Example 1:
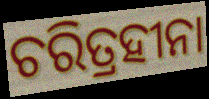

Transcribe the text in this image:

ଚରିତ୍ରହୀନା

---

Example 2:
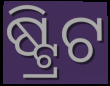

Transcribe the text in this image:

ଷ୍ଟ୍ରିଟ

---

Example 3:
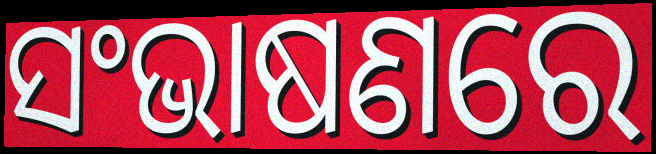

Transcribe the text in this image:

ସଂଭାଷଣରେ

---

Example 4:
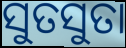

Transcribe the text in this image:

ସୁତସୁତା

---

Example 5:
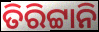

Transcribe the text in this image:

ତିରିଟ୍ଟାନି